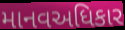
માનવઅધિકાર